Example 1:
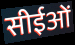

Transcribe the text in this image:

सीईओं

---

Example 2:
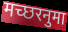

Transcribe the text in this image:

मच्छरनुमा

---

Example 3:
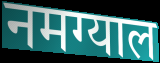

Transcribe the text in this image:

नमग्याल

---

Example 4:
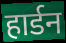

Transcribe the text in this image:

हार्डन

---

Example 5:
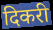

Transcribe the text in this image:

दिकरी